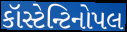
કૉસ્ટેન્ટિનોપલ